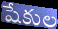
షేకుల